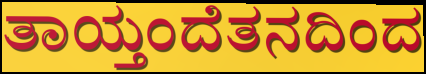
ತಾಯ್ತಂದೆತನದಿಂದ